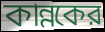
কান্নকের